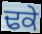
ਢਕੇ